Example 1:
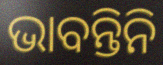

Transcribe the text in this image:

ଭାବନ୍ତିନି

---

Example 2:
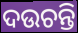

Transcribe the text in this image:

ଦଉଚନ୍ତି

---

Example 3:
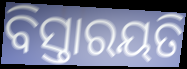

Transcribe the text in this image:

ବିସ୍ତାରୟତି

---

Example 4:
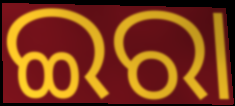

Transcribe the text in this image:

ଇରା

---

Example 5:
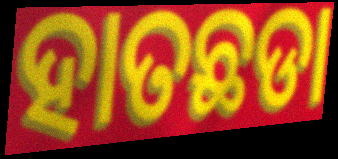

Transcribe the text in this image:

ହାତଛଡା